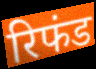
रिफंड